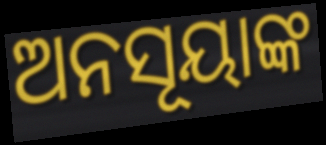
ଅନସୂୟାଙ୍କ